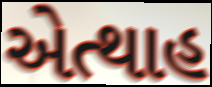
એત્થાહ